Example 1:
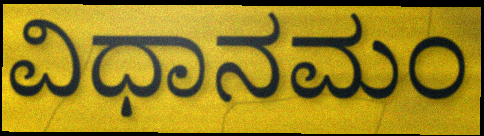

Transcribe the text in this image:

ವಿಧಾನಮಂ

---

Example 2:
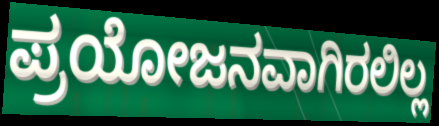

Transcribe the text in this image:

ಪ್ರಯೋಜನವಾಗಿರಲಿಲ್ಲ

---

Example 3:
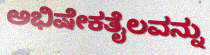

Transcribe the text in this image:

ಅಭಿಷೇಕತೈಲವನ್ನು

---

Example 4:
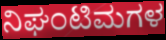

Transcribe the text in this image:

ನಿಘಂಟಿಮಗಳ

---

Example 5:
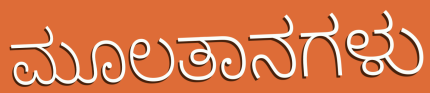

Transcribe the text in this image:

ಮೂಲತಾನಗಳು